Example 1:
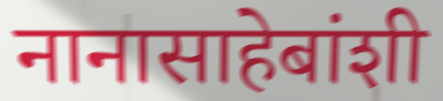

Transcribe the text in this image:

नानासाहेबांशी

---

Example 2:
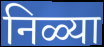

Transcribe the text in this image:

निळ्या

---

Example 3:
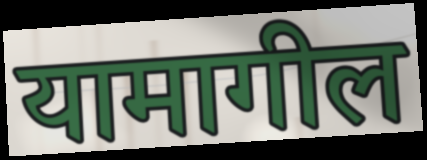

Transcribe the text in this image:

यामागील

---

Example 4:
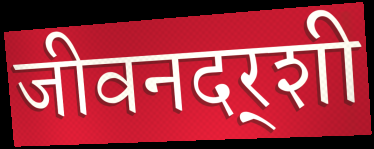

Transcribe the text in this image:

जीवनदर्शी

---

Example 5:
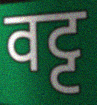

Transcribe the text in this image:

वट्ट